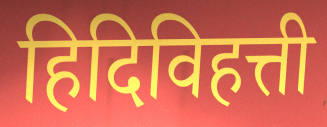
हिदिविहत्ती